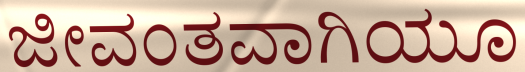
ಜೀವಂತವಾಗಿಯೂ